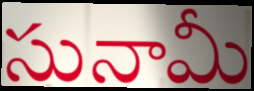
సునామీ